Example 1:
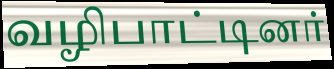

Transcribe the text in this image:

வழிபாட்டினர்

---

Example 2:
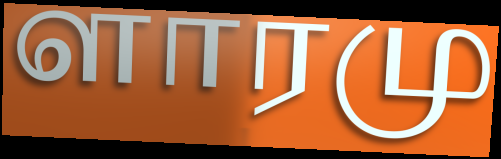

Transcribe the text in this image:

ளாரமு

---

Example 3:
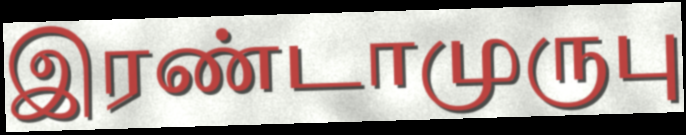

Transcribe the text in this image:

இரண்டாமுருபு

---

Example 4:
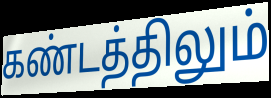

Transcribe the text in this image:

கண்டத்திலும்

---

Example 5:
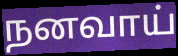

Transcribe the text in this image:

நனவாய்